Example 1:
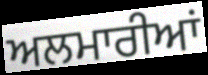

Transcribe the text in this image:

ਅਲਮਾਰੀਆਂ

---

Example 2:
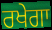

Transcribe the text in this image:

ਰਖੇਗਾ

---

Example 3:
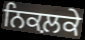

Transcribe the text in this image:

ਨਿਕਲ਼ਕੇ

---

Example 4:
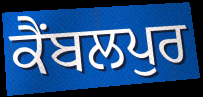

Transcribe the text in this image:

ਕੈਂਬਲਪੁਰ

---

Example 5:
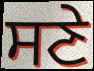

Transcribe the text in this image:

ਸਣੇ